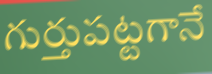
గుర్తుపట్టగానే